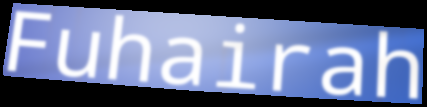
Fuhairah